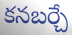
కనబర్చే